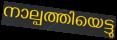
നാല്പത്തിയെട്ടു